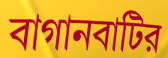
বাগানবাটির